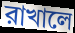
রাখালে